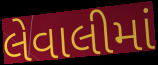
લેવાલીમાં